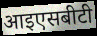
आइएसबीटी